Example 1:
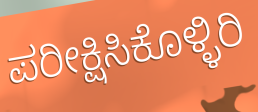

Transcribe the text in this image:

ಪರೀಕ್ಷಿಸಿಕೊಳ್ಳಿರಿ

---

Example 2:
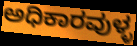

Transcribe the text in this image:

ಅಧಿಕಾರವುಳ್ಳ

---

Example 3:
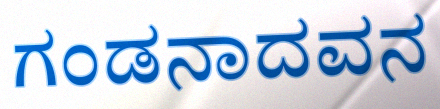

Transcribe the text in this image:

ಗಂಡನಾದವನ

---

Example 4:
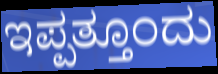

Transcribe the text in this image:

ಇಪ್ಪತ್ತೂಂದು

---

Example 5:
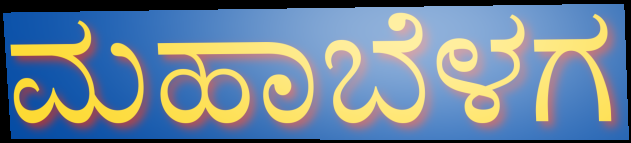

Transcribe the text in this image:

ಮಹಾಬೆಳಗ